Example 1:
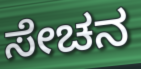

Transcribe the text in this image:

ಸೇಚನ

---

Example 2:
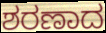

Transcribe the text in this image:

ಶರಣಾದ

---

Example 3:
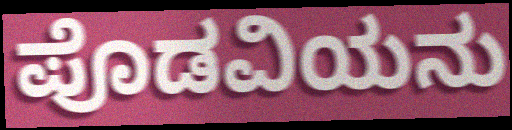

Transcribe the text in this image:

ಪೊಡವಿಯನು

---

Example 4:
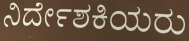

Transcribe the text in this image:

ನಿರ್ದೇಶಕಿಯರು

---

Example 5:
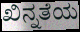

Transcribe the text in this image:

ಖಿನ್ನತೆಯ